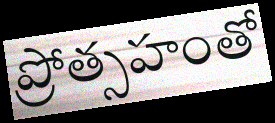
ప్రోత్సహంతో